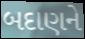
બદાણને